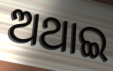
ଅଥାଇ